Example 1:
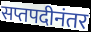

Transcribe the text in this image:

सप्तपदीनंतर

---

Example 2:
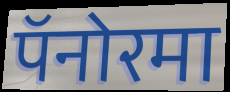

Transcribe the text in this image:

पॅनोरमा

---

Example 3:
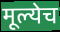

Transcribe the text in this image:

मूल्येच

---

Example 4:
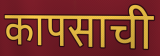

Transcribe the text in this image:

कापसाची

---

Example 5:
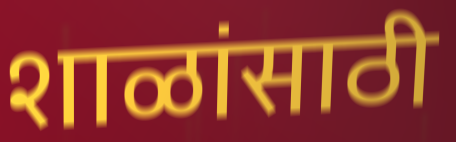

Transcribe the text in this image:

शाळांसाठी